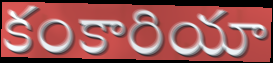
కంకారియా